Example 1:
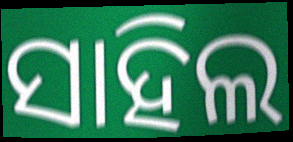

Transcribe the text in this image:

ସାହିଲ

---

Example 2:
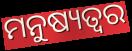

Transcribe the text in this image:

ମନୁଷ୍ୟତ୍ବର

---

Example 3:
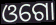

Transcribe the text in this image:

ଓଗୋ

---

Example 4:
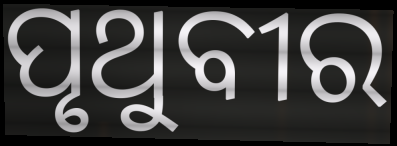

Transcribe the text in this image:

ପୃଥୁବୀର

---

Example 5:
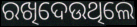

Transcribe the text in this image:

ରଖିଦେଉଥିଲେ